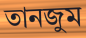
তানজুম